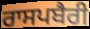
ਰਾਸਪਬੈਰੀ